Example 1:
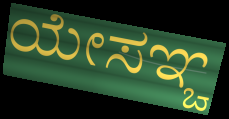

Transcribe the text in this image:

ಯೇಸಞ್ಚ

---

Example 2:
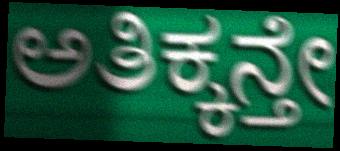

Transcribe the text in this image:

ಅತಿಕ್ಕನ್ತೇ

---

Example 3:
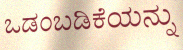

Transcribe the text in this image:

ಒಡಂಬಡಿಕೆಯನ್ನು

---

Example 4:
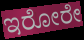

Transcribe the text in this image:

ಇರೋರೇ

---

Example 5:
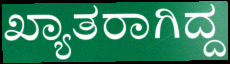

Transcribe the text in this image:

ಖ್ಯಾತರಾಗಿದ್ದ